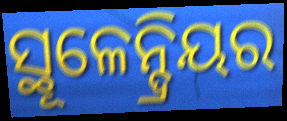
ସ୍ଥୂଳେନ୍ଦ୍ରିୟର